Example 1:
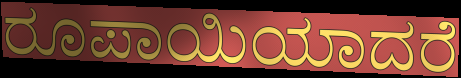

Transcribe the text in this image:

ರೂಪಾಯಿಯಾದರೆ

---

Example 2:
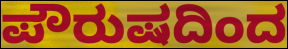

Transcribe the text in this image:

ಪೌರುಷದಿಂದ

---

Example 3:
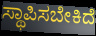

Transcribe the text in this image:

ಸ್ಥಾಪಿಸಬೇಕಿದೆ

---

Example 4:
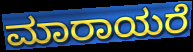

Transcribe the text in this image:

ಮಾರಾಯರೆ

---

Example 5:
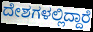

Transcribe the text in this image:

ದೇಶಗಳಲ್ಲಿದ್ದಾರೆ